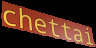
chettai